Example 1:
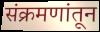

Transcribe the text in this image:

संक्रमणांतून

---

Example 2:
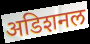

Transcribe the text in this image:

अडिशनल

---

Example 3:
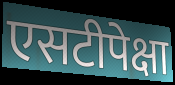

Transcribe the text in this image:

एसटीपेक्षा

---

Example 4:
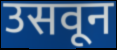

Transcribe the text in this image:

उसवून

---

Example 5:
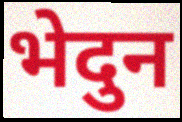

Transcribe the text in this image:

भेदुन